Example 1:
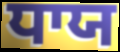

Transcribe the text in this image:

ਧਾਯ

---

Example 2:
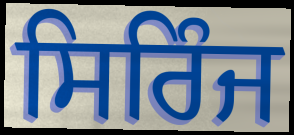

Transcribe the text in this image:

ਸਿਰਿੰਜ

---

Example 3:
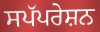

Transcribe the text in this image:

ਸਪੱਪਰੇਸ਼ਨ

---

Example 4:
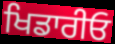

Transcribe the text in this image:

ਖਿਡਾਰੀਓ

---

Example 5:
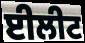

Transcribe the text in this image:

ਈਲੀਟ